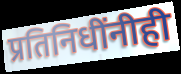
प्रतिनिधींनीही